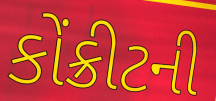
કોંક્રીટની